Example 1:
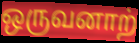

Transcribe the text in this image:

ஒருவனாற்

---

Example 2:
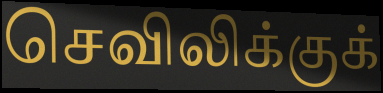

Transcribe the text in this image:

செவிலிக்குக்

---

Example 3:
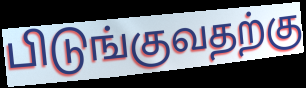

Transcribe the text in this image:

பிடுங்குவதற்கு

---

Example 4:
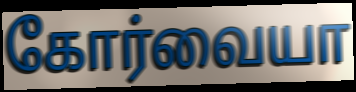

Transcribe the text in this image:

கோர்வையா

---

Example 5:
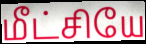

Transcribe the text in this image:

மீட்சியே